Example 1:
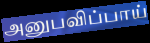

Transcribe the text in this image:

அனுபவிப்பாய்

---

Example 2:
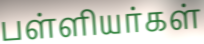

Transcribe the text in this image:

பள்ளியர்கள்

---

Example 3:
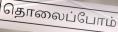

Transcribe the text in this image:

தொலைப்போம்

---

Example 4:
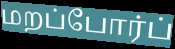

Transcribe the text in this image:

மறப்போர்ப்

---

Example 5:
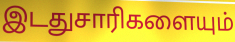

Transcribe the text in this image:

இடதுசாரிகளையும்